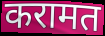
करामत